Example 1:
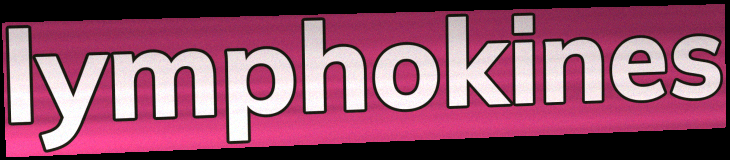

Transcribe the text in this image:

lymphokines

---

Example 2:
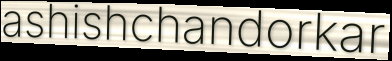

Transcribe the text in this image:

ashishchandorkar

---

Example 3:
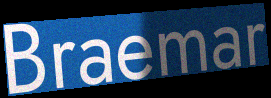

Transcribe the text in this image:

Braemar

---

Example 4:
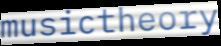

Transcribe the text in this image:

musictheory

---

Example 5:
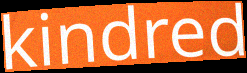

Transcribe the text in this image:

kindred